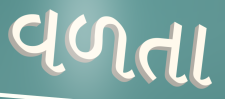
વળતા